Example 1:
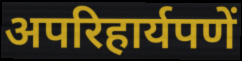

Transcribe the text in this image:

अपरिहार्यपणें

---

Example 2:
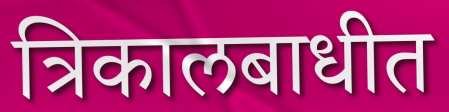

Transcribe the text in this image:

त्रिकालबाधीत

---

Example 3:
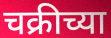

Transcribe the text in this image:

चक्रीच्या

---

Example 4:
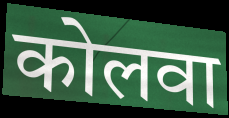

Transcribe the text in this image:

कोलवा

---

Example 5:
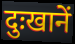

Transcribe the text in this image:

दुःखानें